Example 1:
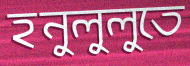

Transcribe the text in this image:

হনুলুলুতে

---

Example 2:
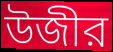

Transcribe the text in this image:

উজীর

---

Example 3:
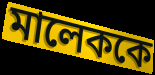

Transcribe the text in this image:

মালেককে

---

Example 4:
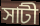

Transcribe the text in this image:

সাটী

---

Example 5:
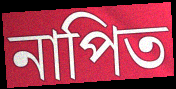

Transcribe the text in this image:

নাপিত